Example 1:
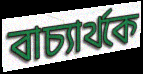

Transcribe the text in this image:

বাচ্যার্থকে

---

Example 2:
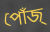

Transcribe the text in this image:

পোঁজ্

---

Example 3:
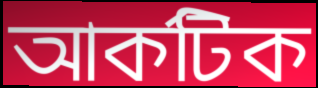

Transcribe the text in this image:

আর্কটিক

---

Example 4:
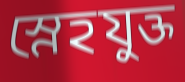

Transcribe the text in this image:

স্নেহযুক্ত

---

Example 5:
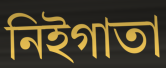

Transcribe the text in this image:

নিইগাতা